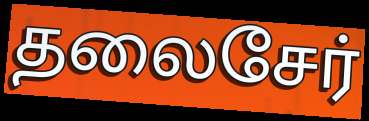
தலைசேர்